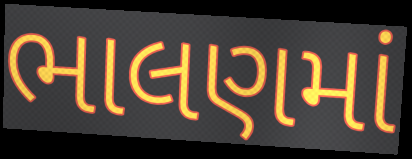
ભાલણમાં